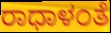
ರಾಧಾಳಂತೆ